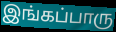
இங்கப்பாரு